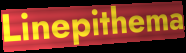
Linepithema